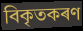
বিকৃতকৰণ